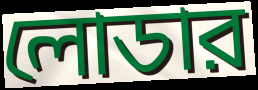
লোডার